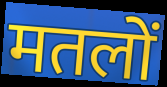
मतलों